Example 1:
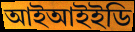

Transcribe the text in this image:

আইআইইডি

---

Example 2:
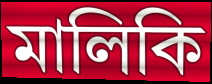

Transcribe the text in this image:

মালিকি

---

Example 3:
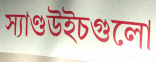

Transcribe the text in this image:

স্যাণ্ডউইচগুলো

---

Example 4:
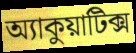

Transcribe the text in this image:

অ্যাকুয়াটিক্স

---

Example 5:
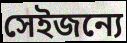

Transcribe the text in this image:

সেইজন্যে